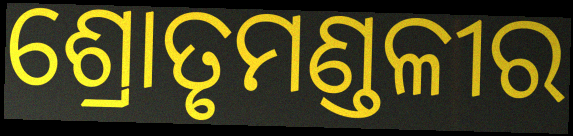
ଶ୍ରୋତୃମଣ୍ଡଳୀର